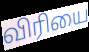
விரியை